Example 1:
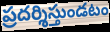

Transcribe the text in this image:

ప్రదర్శిస్తుండటం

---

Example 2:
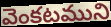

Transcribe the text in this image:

వెంకటముని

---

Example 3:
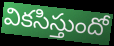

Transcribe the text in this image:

వికసిస్తుందో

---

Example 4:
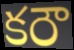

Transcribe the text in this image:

కరౌ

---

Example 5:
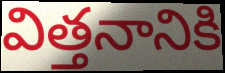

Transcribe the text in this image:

విత్తనానికి